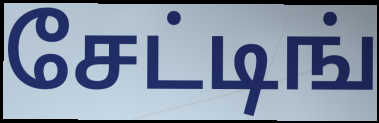
சேட்டிங்